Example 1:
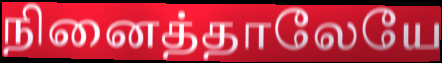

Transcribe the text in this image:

நினைத்தாலேயே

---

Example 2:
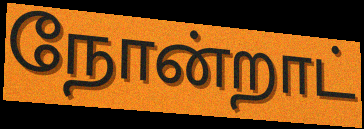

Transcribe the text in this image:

நோன்றாட்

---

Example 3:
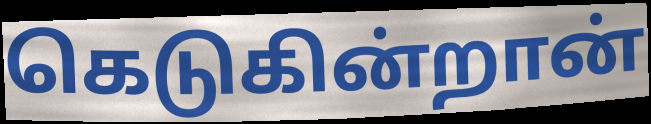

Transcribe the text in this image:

கெடுகின்றான்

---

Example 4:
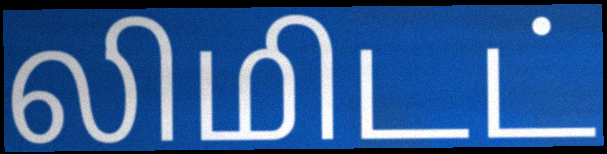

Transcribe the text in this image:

லிமிடட்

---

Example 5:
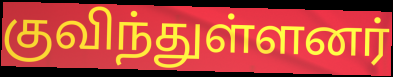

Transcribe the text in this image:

குவிந்துள்ளனர்